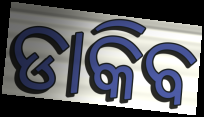
ଡାକିବ